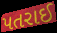
પતરાઈ